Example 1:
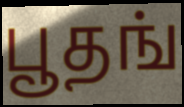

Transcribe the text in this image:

பூதங்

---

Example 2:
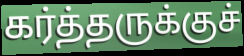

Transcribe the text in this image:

கர்த்தருக்குச்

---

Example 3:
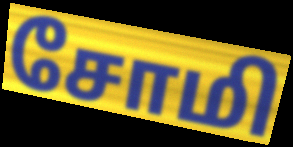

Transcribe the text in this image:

சோமி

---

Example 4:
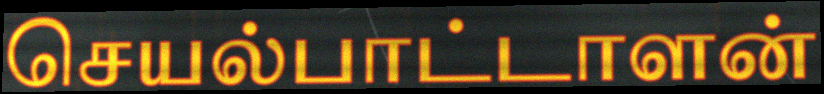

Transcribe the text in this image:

செயல்பாட்டாளன்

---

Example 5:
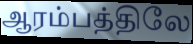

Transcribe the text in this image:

ஆரம்பத்திலே